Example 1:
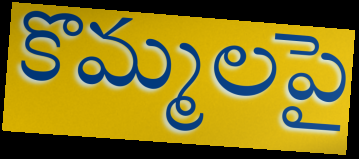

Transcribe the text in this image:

కొమ్మలపై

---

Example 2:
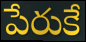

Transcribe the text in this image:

పేరుకే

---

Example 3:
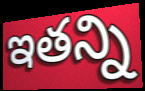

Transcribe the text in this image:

ఇతన్ని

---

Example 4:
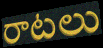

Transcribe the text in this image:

రాటలు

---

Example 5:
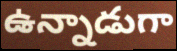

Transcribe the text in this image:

ఉన్నాడుగా